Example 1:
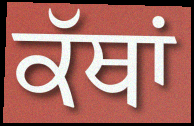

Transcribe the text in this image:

ਕੱਥਾਂ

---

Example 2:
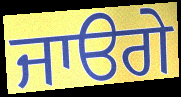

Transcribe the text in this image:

ਜਾੳਗੇ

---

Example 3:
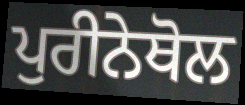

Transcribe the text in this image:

ਪੁਰੀਨੇਥੋਲ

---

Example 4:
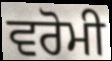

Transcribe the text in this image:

ਵਰੋਮੀ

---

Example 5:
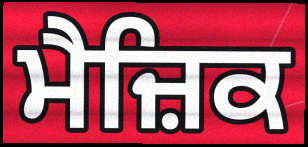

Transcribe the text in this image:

ਮੈਜ਼ਿਕ